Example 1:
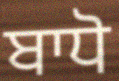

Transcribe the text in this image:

ਬਾਧੋ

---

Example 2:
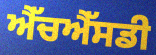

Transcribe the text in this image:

ਐੱਚਐੱਸਡੀ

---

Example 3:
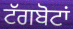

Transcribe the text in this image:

ਟੱਗਬੋਟਾਂ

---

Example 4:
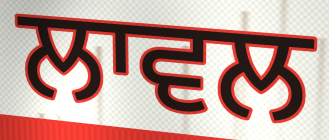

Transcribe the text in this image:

ਲਾਵਲ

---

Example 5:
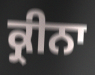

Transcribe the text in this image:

ਕ੍ਰੀਨਾ